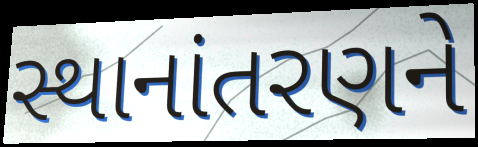
સ્થાનાંતરણને